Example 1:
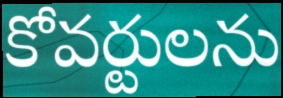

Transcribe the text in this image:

కోవర్టులను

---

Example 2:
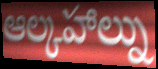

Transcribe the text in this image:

ఆల్కహాల్ను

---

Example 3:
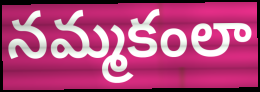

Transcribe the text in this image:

నమ్మకంలా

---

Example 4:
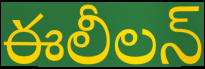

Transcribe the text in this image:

ఈలీలన్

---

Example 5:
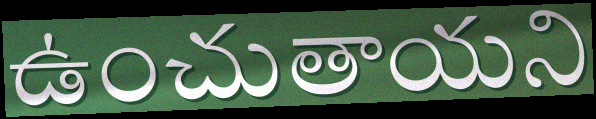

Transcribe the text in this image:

ఉంచుతాయని